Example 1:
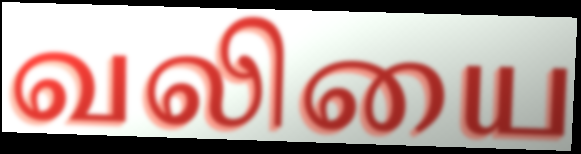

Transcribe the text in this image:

வலியை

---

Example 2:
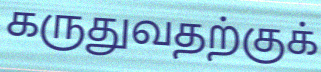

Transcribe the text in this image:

கருதுவதற்குக்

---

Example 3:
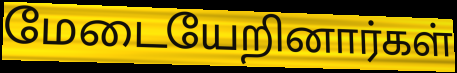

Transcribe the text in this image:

மேடையேறினார்கள்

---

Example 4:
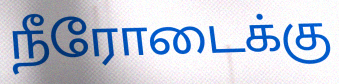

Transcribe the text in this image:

நீரோடைக்கு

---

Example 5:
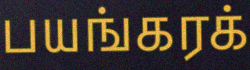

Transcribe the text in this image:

பயங்கரக்